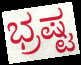
ಭ್ರಷ್ಟ